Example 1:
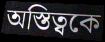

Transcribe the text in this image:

অস্তিত্বকে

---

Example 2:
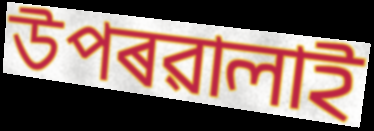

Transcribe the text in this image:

উপৰৱালাই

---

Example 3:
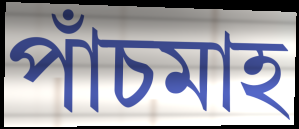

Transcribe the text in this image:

পাঁচমাহ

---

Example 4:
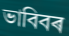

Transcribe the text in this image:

ভাবিবৰ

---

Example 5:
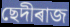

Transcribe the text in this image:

ছেদীৰাজ